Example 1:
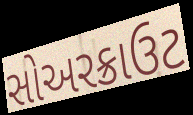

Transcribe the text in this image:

સોઅરક્રાઉટ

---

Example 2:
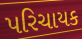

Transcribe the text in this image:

પરિચાયક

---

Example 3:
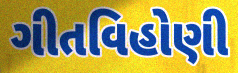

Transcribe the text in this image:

ગીતવિહોણી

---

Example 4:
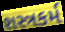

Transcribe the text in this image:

શસ્ત્રકર્મ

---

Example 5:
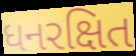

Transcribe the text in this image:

ધનરક્ષિત